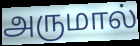
அருமால்